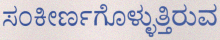
ಸಂಕೀರ್ಣಗೊಳ್ಳುತ್ತಿರುವ